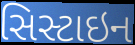
સિસ્ટાઇન